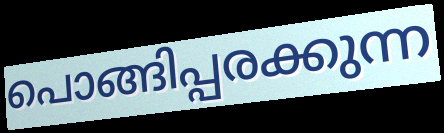
പൊങ്ങിപ്പരക്കുന്ന